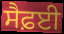
ਸੈਫ਼ਈ